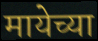
मायेच्या